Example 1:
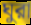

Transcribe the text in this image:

ঘুরা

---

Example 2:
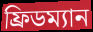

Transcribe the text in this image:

ফ্রিডম্যান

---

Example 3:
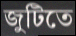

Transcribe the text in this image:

জুটিতে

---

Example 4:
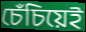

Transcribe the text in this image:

চেঁচিয়েই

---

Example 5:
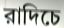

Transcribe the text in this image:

রাদিচে